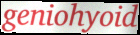
geniohyoid